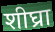
शीघ्रा